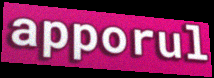
apporul